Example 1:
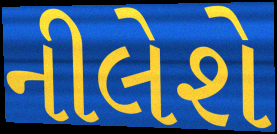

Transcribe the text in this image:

નીલેશે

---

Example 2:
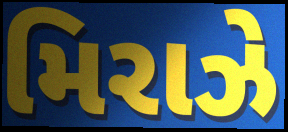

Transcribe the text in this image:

મિરાઝે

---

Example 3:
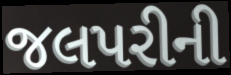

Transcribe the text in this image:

જલપરીની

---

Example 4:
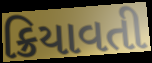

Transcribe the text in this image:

ક્રિયાવતી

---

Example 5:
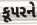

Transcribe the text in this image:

કૂપરને